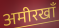
अमीरखाँ